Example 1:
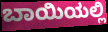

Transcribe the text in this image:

ಬಾಯಿಯಲ್ಲಿ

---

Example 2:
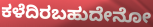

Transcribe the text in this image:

ಕಳೆದಿರಬಹುದೇನೋ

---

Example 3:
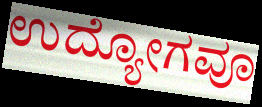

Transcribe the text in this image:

ಉದ್ಯೋಗವೂ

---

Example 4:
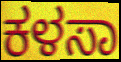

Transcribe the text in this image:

ಕಳಸಾ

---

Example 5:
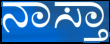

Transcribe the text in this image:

ನಾಸ್ತಾ